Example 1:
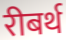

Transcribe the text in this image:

रीबर्थ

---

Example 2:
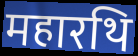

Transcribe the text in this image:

महारथि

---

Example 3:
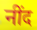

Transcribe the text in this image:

नींद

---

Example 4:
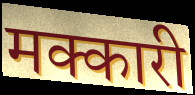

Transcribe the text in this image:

मक्कारी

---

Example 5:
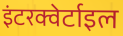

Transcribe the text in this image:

इंटरक्वेर्टाइल